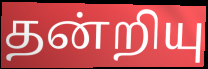
தன்றியு